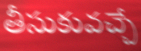
తీసుకువచ్చే